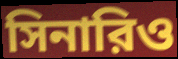
সিনারিও